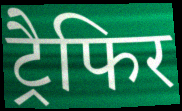
ट्रैफिर